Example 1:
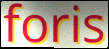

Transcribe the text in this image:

foris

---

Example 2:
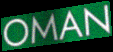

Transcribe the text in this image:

OMAN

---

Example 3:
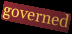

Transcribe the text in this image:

governed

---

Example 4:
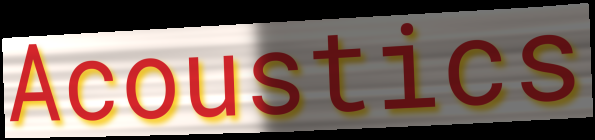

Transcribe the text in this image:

Acoustics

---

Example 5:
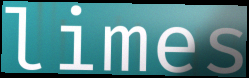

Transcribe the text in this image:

limes